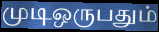
முடிஒருபதும்